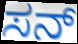
ಸನ್